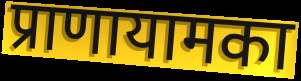
प्राणायामका